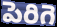
పెరిగె